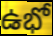
ఉభో